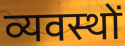
व्यवस्थों